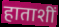
हाताशीं